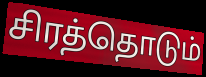
சிரத்தொடும்